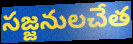
సజ్జనులచేత